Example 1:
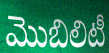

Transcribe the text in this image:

మొబిలిటీ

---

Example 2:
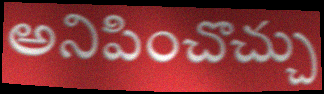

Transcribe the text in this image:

అనిపించొచ్చు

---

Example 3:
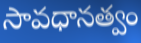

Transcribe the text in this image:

సావధానత్వం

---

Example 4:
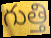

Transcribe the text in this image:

గుత్తి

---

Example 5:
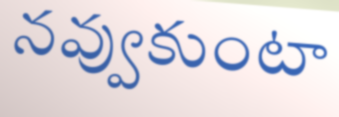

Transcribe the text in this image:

నవ్వుకుంటా